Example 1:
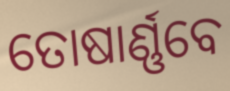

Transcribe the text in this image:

ତୋଷାର୍ଣ୍ଣବେ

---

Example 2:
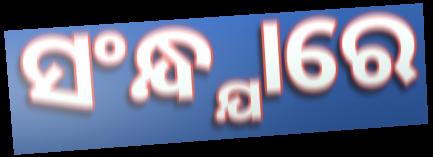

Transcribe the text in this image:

ସଂନ୍ଧ୍ଯାରେ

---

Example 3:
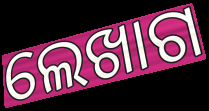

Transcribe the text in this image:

ଲେଖାଗ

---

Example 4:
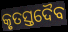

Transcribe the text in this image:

କୃତସ୍ତଦୈବ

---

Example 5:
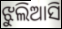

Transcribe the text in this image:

ଝୁଲିଆସି